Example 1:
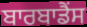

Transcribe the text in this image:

ਬਾਰਬਾਡੈਂਸ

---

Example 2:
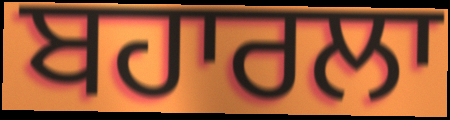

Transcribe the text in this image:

ਬਹਾਰਲਾ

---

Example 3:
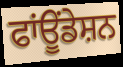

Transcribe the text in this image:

ਫਾਂਊਂਡੇਸ਼ਨ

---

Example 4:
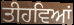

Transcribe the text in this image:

ਤੀਹਵਿਆਂ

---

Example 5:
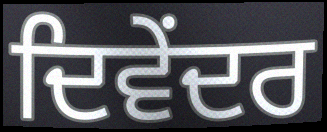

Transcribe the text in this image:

ਦਿਵੇਂਦਰ